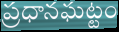
ప్రధానఘట్టం